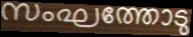
സംഘത്തോടു